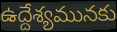
ఉద్దేశ్యమునకు